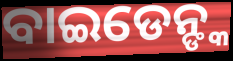
ବାଇଡେନ୍ଙ୍କ